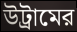
উট্রামের